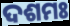
ଦଶମଃ